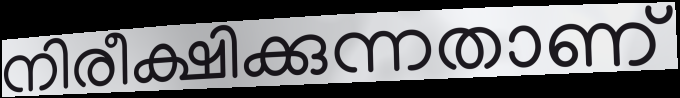
നിരീക്ഷിക്കുന്നതാണ്